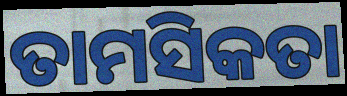
ତାମସିକତା